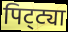
पिट्ट्या